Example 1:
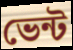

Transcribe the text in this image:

ভেন্ট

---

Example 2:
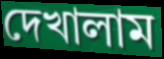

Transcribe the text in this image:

দেখালাম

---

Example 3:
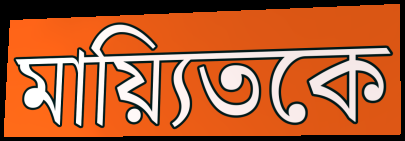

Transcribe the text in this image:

মায়্যিতকে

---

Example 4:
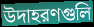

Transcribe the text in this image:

উদাহরণগুলি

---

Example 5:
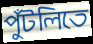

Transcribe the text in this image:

পুঁটলিতে